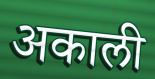
अकाली